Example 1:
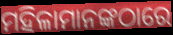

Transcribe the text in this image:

ମହିଳାମାନଙ୍କଠାରେ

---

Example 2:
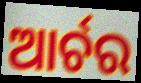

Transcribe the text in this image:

ଆର୍ଚର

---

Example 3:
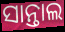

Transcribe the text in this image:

ସାନ୍ତାଲ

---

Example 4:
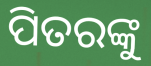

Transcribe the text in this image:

ପିତରଙ୍କୁ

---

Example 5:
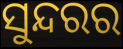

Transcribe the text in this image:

ସୁନ୍ଦରର